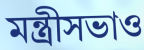
মন্ত্রীসভাও